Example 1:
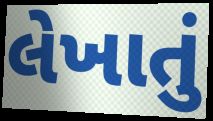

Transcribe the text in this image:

લેખાતું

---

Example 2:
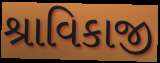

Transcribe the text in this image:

શ્રાવિકાજી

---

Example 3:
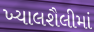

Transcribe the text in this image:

ખ્યાલશૈલીમાં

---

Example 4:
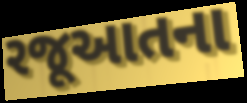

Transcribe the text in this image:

રજૂઆતના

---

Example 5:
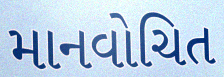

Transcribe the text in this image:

માનવોચિત